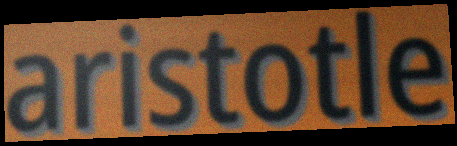
aristotle